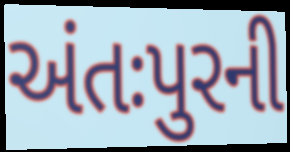
અંતઃપુરની